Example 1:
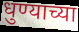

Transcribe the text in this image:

धुण्याच्या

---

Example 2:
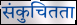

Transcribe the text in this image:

संकुचितता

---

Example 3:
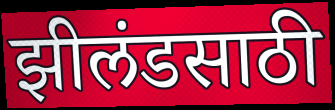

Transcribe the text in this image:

झीलंडसाठी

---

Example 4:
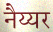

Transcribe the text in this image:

नैय्यर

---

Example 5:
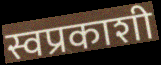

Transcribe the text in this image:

स्वप्रकाशी